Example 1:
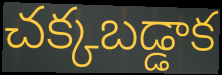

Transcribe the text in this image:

చక్కబడ్డాక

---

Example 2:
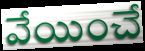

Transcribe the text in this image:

వేయించే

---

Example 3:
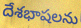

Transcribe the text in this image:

దేశభాషలను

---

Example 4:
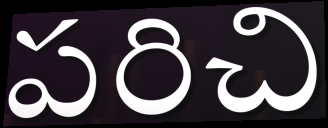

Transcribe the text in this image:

పరిచి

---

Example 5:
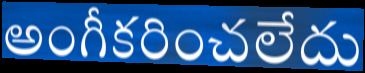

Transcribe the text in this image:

అంగీకరించలేదు